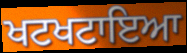
ਖਟਖਟਾਇਆ